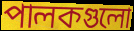
পালকগুলো